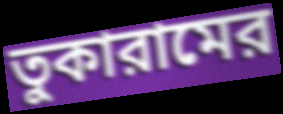
তুকারামের